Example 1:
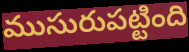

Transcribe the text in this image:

ముసురుపట్టింది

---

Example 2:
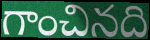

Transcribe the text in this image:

గాంచినది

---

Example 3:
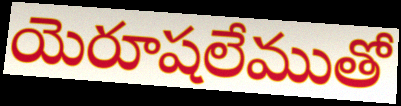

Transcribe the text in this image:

యెరూషలేముతో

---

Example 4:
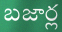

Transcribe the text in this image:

బజార్ల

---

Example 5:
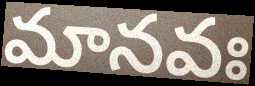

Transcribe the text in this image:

మానవః